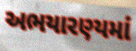
અભયારણ્યમાં